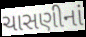
ચાસણીનાં